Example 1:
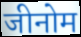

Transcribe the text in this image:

जीनोम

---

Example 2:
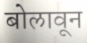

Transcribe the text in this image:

बोलावून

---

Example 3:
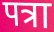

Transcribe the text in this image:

पत्रा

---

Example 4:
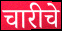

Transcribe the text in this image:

चारीचे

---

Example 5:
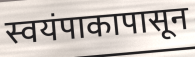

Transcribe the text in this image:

स्वयंपाकापासून